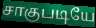
சாகுபடியே